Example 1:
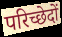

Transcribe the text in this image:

परिच्छेदों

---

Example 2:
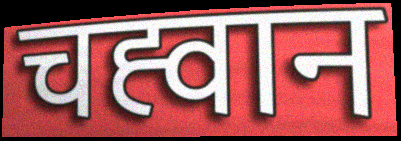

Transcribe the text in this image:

चह्वान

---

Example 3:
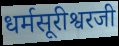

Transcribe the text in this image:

धर्मसूरीश्वरजी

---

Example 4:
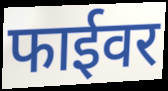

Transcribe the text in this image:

फाईवर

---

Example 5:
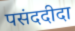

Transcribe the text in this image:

पसंददीदा